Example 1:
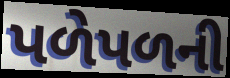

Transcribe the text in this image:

પળેપળની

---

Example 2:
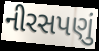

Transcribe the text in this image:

નીરસપણું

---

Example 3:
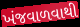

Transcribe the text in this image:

ખંજવાળવાથી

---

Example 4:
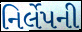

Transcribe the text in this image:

નિર્લેપની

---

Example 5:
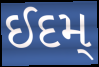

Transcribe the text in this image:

ઈદમ્